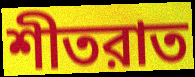
শীতরাত